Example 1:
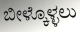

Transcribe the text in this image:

ಬೀಳ್ಕೊಳ್ಳಲು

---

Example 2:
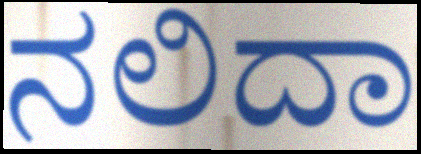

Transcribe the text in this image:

ನಲಿದಾ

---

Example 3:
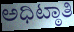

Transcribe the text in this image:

ಅಧಿಟ್ಠಾತಿ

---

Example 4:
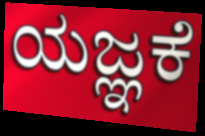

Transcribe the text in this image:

ಯಜ್ಞಕೆ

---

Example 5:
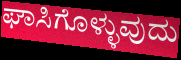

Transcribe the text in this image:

ಘಾಸಿಗೊಳ್ಳುವುದು